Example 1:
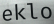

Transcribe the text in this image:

eklo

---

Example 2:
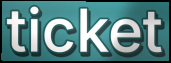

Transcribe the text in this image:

ticket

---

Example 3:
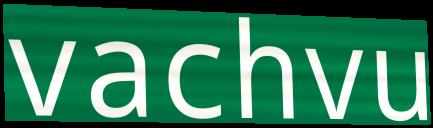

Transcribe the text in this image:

vachvu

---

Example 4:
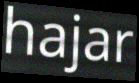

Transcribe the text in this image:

hajar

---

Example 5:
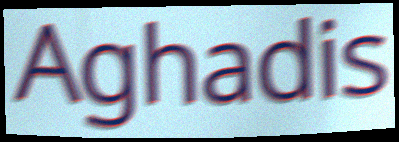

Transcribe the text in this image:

Aghadis